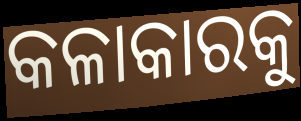
କଳାକାରକୁ